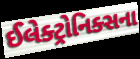
ઈલેક્ટ્રોનિક્સના